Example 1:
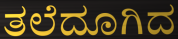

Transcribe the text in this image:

ತಲೆದೂಗಿದ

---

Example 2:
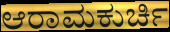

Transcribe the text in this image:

ಆರಾಮಕುರ್ಚಿ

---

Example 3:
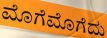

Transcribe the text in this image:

ಮೊಗೆಮೊಗೆದು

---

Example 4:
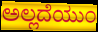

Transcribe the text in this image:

ಅಲ್ಲದೆಯುಂ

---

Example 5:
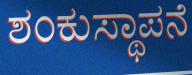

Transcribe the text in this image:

ಶಂಕುಸ್ಥಾಪನೆ